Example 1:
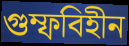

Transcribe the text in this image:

গুম্ফবিহীন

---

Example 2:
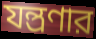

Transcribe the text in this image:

যন্ত্রণার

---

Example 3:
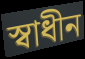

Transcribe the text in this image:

স্বাধীন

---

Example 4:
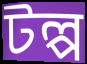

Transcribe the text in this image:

টল্প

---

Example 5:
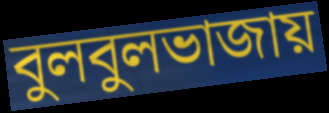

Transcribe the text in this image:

বুলবুলভাজায়